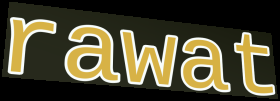
rawat